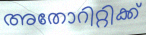
അതോറിറ്റിക്ക്